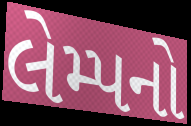
લેમ્પનો